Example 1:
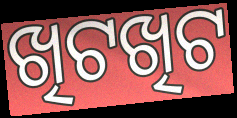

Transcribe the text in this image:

ଖିଟଖିଟ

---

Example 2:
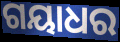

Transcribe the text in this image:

ଗୟାଧର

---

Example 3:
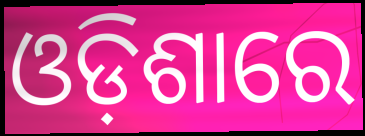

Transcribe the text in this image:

ଓଡ଼ିଶାରେ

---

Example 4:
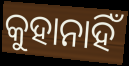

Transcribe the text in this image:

କୁହାନାହିଁ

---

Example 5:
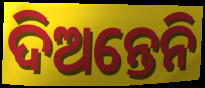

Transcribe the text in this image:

ଦିଅନ୍ତେନି